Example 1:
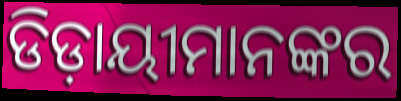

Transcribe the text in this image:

ଡିଡ଼ାୟୀମାନଙ୍କର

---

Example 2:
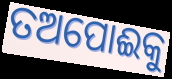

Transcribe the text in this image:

ତଅପୋଈକୁ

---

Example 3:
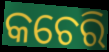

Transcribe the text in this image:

କଚେରି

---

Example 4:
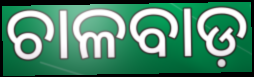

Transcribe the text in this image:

ଚାଳବାଡ଼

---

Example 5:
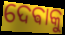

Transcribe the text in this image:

ଦେଵାକୁ